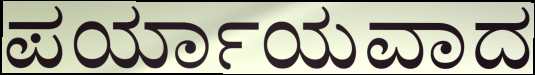
ಪರ್ಯಾಯವಾದ